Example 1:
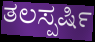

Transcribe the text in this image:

ತಲಸ್ಪರ್ಷಿ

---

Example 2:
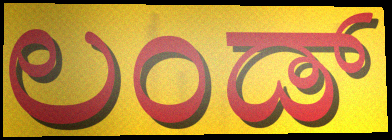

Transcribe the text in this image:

ಲಂಡ್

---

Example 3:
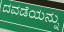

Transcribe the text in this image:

ದವಡೆಯನ್ನು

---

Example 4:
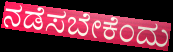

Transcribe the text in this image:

ನಡೆಸಬೇಕೆಂದು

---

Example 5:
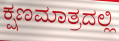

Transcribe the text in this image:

ಕ್ಷಣಮಾತ್ರದಲ್ಲಿ